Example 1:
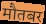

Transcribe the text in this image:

मौतबर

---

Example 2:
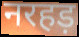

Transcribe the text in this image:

नरहड़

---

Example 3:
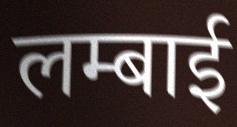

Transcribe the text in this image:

लम्बाई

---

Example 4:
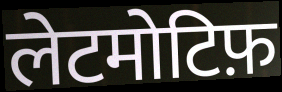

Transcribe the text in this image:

लेटमोटिफ़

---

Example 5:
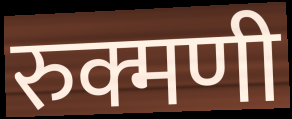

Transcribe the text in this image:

रुक्मणी